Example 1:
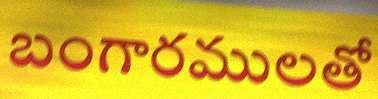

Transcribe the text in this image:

బంగారములతో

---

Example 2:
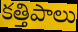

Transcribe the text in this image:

కత్తిపాలు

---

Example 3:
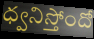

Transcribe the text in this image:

ధ్వనిస్తోందో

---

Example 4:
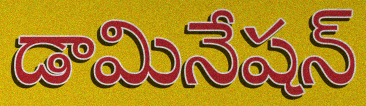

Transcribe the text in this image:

డామినేషన్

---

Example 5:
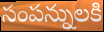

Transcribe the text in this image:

సంపన్నులకి